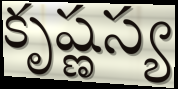
కృష్ణస్య